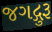
જગદ્ગુરૂ